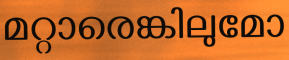
മറ്റാരെങ്കിലുമോ